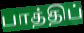
பாத்திப்